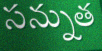
సన్నుత